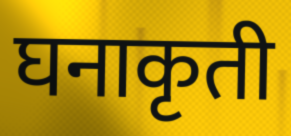
घनाकृती